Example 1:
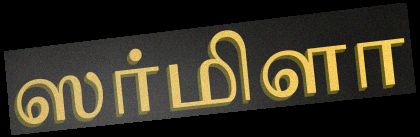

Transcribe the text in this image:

ஸர்மிளா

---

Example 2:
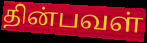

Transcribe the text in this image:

தின்பவள்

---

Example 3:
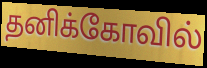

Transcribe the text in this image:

தனிக்கோவில்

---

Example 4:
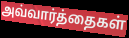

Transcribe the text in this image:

அவ்வார்த்தைகள்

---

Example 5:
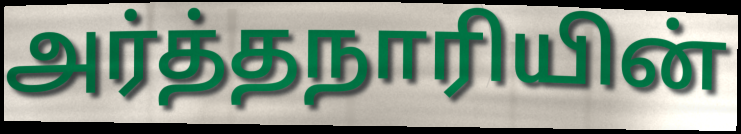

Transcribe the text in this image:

அர்த்தநாரியின்